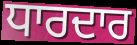
ਧਾਰਦਾਰ